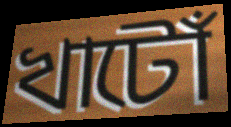
খাটোঁ